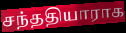
சந்ததியாராக